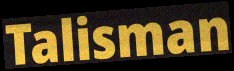
Talisman